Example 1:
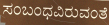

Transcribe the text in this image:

ಸಂಬಂಧವಿರುವಂತೆ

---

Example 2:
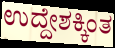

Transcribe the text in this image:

ಉದ್ದೇಶಕ್ಕಿಂತ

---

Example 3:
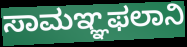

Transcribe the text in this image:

ಸಾಮಞ್ಞಫಲಾನಿ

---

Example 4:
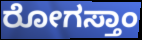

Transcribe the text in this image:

ರೋಗಸ್ತಾಂ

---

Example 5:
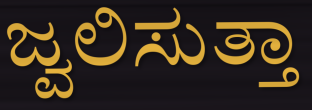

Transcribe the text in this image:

ಜ್ವಲಿಸುತ್ತಾ